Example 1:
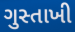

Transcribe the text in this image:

ગુસ્તાખી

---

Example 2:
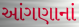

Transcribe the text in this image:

આંગણાનાં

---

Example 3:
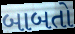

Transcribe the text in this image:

બાબતો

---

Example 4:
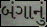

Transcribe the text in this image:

બંગાનું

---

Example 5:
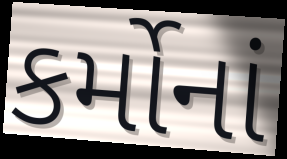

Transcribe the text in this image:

કર્મોનાં